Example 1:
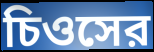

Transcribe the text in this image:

চিওসের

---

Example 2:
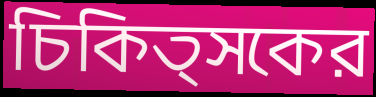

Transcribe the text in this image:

চিকিত্সকের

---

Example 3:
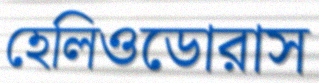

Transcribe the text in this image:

হেলিওডোরাস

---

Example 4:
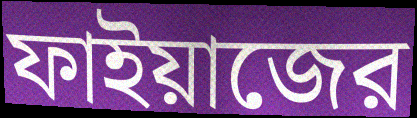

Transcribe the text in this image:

ফাইয়াজের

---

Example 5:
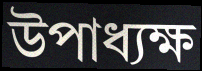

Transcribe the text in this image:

উপাধ্যক্ষ